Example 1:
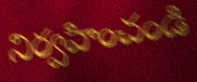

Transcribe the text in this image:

నిర్వహించండి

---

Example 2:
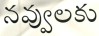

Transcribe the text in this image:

నవ్వులకు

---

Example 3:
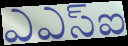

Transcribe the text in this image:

ఎఎస్ఐ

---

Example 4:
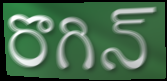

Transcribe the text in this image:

రొగిన్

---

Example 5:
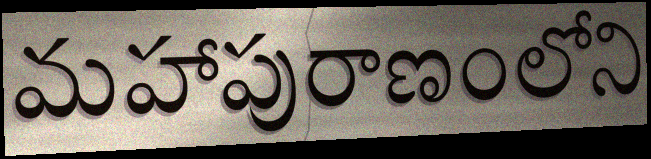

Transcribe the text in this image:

మహాపురాణంలోని